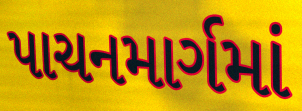
પાચનમાર્ગમાં